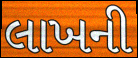
લાખની